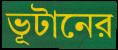
ভূটানের